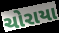
ચોરાયા